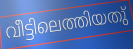
വീട്ടിലെത്തിയതു്